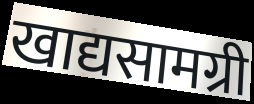
खाद्यसामग्री